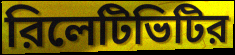
রিলেটিভিটির